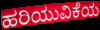
ಹರಿಯುವಿಕೆಯ